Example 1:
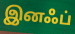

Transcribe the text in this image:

இனஃப்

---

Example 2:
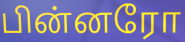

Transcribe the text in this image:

பின்னரோ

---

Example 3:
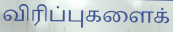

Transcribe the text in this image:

விரிப்புகளைக்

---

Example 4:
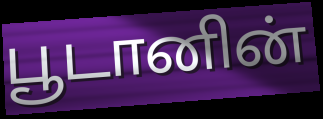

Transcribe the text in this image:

பூடானின்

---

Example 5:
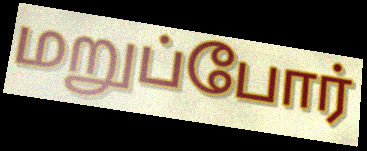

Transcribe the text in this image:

மறுப்போர்